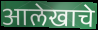
आलेखाचे